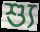
শ্যু